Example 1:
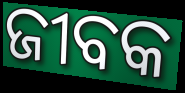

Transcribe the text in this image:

ଜୀବକ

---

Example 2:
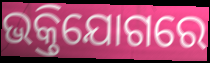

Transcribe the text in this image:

ଭକ୍ତିଯୋଗରେ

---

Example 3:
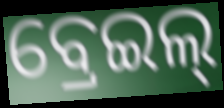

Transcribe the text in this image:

ବ୍ରେଇଲ୍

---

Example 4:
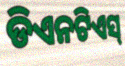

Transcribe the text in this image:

ଡିଏନଟିଏସ୍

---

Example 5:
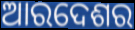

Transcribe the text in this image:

ଆରଦେଶର